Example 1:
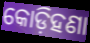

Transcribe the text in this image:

କୋଡ଼ିହଣା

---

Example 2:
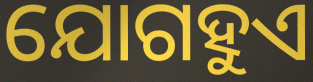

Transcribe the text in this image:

ଯୋଗହୁଏ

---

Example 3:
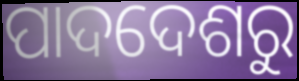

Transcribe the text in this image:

ପାଦଦେଶରୁ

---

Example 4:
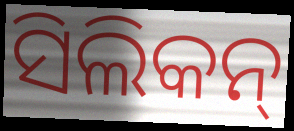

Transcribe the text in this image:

ସିଲିକନ୍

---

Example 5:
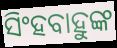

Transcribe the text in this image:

ସିଂହବାହୁଙ୍କ